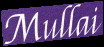
Mullai